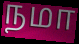
நமா